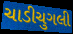
ચાડીચુગલી